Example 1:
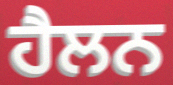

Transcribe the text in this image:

ਹੈਲਨ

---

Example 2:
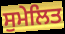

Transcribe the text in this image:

ਸੁਮੇਲਿਤ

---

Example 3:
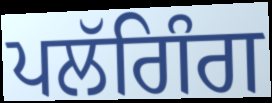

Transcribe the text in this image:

ਪਲੱਗਿੰਗ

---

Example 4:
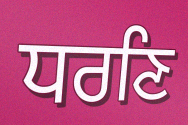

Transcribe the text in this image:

ਧਰਣਿ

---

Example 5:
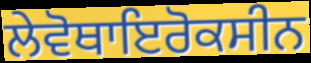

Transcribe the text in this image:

ਲੇਵੋਥਾਇਰੋਕਸੀਨ